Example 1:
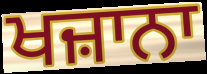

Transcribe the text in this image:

ਖਜ਼ਾਨਾ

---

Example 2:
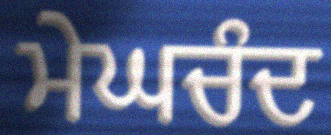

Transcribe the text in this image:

ਮੇਘਚੰਦ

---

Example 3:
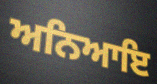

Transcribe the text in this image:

ਅਨਿਆਇ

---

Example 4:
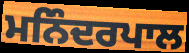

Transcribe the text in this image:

ਮਨਿੰਦਰਪਾਲ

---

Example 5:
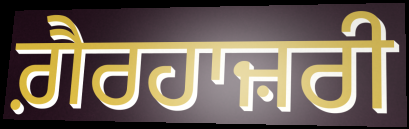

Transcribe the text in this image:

ਗ਼ੈਰਹਾਜ਼ਰੀ